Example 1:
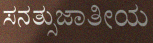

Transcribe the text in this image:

ಸನತ್ಸುಜಾತೀಯ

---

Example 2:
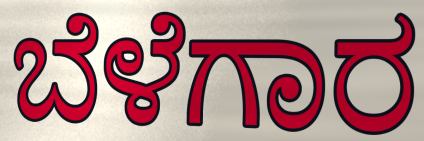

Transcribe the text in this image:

ಬೆಳೆಗಾರ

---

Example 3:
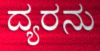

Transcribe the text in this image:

ದ್ಯರನು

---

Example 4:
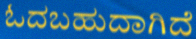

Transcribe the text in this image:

ಓದಬಹುದಾಗಿದೆ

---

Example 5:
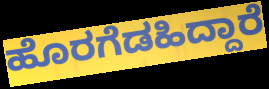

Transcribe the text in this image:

ಹೊರಗೆಡಹಿದ್ದಾರೆ